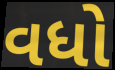
વધો